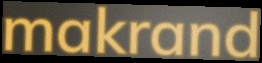
makrand